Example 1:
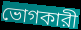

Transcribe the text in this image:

ভোগকারী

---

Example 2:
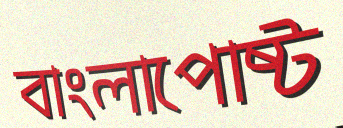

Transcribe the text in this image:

বাংলাপোষ্ট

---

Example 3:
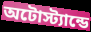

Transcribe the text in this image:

অটোস্ট্যান্ডে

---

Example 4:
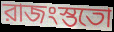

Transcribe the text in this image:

রাজংস্ততো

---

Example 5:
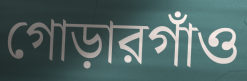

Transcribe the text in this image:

গোড়ারগাঁও